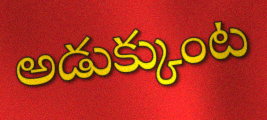
అడుక్కుంట